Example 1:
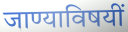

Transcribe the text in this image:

जाण्याविषयीं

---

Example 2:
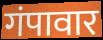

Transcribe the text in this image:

गंपावार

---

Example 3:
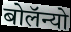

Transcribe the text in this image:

बोलॅन्यो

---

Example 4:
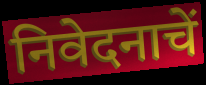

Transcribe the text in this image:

निवेदनाचें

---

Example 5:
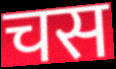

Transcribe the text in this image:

चस